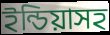
ইন্ডিয়াসহ